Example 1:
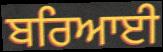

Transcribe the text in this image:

ਬਰਿਆਈ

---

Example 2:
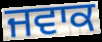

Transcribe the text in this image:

ਜਵਾਕ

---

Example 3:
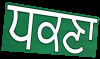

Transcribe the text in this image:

ਧਕਣਾ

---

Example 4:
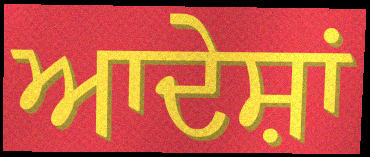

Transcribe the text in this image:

ਆਦੇਸ਼ਾਂ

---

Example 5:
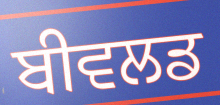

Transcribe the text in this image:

ਬੀਵਲਡ